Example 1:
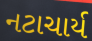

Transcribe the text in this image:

નટાચાર્ય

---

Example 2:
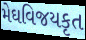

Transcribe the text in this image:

મેઘવિજયકૃત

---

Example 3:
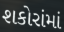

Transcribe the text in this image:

શકોરાંમાં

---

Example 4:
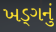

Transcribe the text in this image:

ખડ્ગનું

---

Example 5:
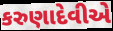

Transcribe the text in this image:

કરુણાદેવીએ